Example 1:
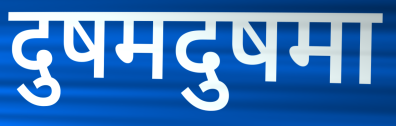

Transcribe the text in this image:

दुषमदुषमा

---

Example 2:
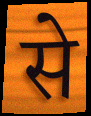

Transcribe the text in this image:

से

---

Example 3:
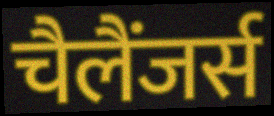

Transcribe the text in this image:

चैलैंजर्स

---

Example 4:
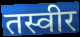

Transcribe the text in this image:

तस्वीर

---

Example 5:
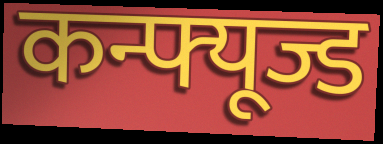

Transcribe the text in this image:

कन्फ्यूज्ड